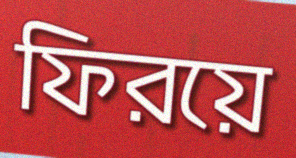
ফিরয়ে